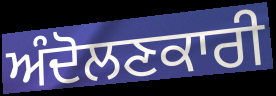
ਅੰਦੋਲਣਕਾਰੀ